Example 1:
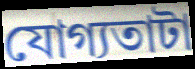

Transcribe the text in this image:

যোগ্যতাটা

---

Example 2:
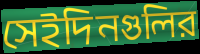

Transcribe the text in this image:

সেইদিনগুলির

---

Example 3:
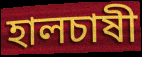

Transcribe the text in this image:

হালচাষী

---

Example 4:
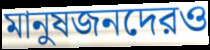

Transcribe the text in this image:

মানুষজনদেরও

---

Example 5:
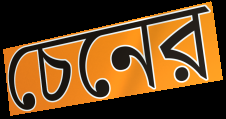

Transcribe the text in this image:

চেনের